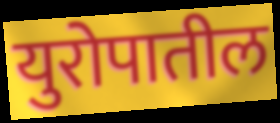
युरोपातील